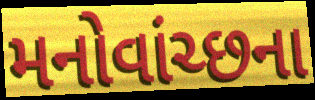
મનોવાંચ્છના